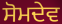
ਸੋਮਦੇਵ